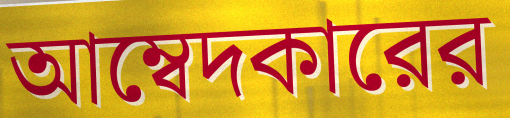
আম্বেদকারের